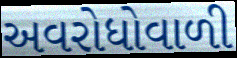
અવરોધોવાળી